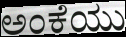
ಅಂಕೆಯು